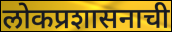
लोकप्रशासनाची